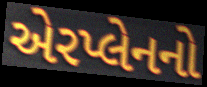
એરપ્લેનનો